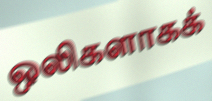
ஒலிகளாகக்